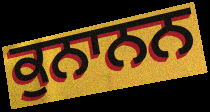
ਕੁਨਾਨਨ